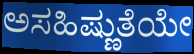
ಅಸಹಿಷ್ಣುತೆಯೇ